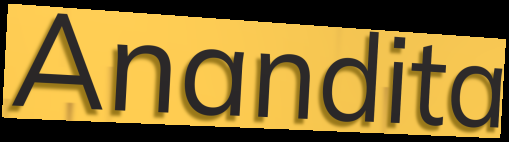
Anandita